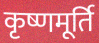
कृष्णमूर्ति